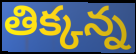
తిక్కన్న